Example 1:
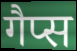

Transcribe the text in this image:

गैप्स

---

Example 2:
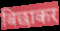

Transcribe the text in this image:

बिछाकर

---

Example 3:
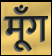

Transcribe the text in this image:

मूँग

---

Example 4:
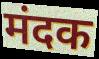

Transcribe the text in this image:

मंदक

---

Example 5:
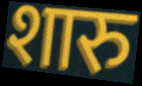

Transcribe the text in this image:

शारु